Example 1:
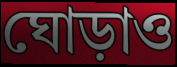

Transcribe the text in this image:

ঘোড়াও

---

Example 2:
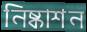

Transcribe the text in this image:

নিষ্কাশন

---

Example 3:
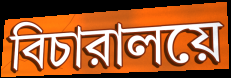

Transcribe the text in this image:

বিচারালয়ে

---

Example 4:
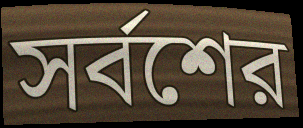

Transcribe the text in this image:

সর্বশের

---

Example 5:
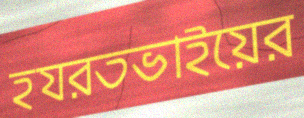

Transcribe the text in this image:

হযরতভাইয়ের